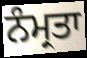
ਨੰਮ੍ਰਤਾ